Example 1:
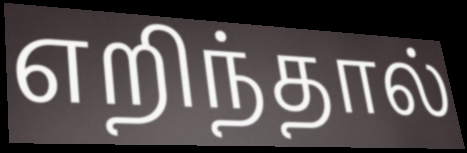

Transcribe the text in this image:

எறிந்தால்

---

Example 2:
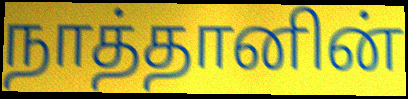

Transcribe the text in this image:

நாத்தானின்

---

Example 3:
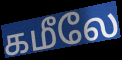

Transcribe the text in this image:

கமீலே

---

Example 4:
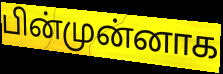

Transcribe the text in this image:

பின்முன்னாக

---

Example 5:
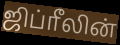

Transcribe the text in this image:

ஜிப்ரீலின்